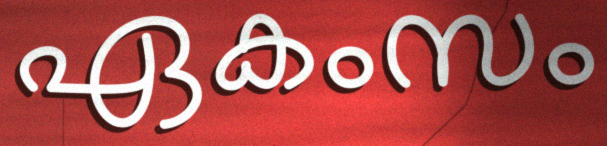
ഏകംസം